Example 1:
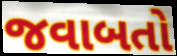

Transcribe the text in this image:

જવાબતો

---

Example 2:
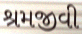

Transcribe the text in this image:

શ્રમજીવી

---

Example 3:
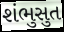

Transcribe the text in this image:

શંભુસુત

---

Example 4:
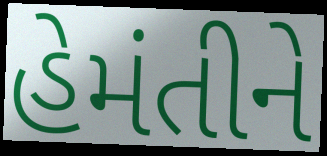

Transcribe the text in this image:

હેમંતીને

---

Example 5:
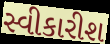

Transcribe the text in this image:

સ્વીકારીશ